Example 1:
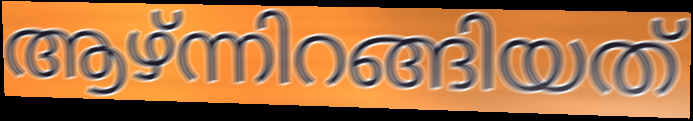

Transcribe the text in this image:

ആഴ്ന്നിറങ്ങിയത്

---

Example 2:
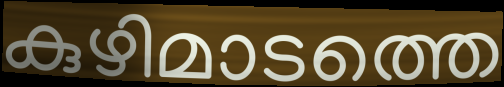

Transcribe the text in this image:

കുഴിമാടത്തെ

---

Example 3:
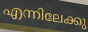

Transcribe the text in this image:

എന്നിലേക്കു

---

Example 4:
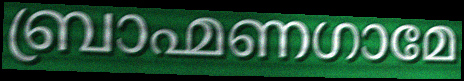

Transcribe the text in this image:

ബ്രാഹ്മണഗാമേ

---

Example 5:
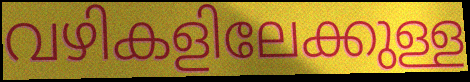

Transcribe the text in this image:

വഴികളിലേക്കുള്ള